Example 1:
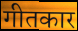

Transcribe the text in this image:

गीतकार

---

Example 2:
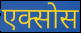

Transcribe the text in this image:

एक्सोस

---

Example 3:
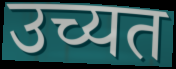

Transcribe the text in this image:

उच्यत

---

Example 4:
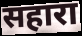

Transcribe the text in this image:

सहारा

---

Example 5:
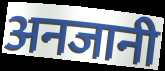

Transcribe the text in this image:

अनजानी